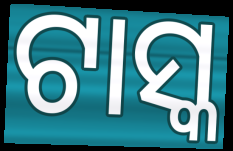
ଟାସ୍କ